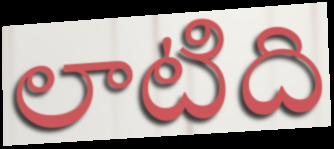
లాటిది